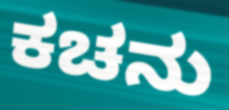
ಕಚನು